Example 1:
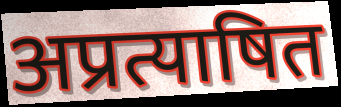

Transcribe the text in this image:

अप्रत्याषित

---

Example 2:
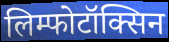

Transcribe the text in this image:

लिम्फोटॉक्सिन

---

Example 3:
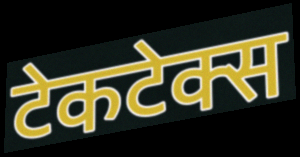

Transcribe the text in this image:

टेकटेक्स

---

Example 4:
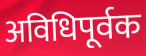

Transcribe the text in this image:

अविधिपूर्वक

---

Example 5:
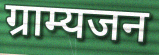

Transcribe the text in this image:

ग्राम्यजन